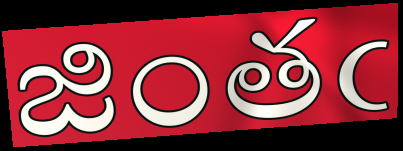
జింతఁ